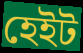
হেইট